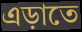
এড়াতে